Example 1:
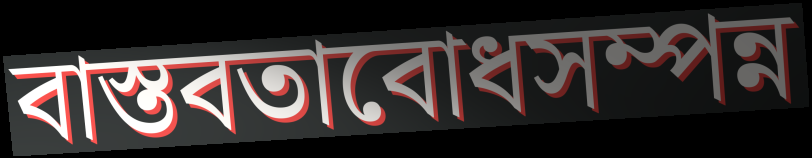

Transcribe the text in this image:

বাস্তবতাবোধসম্পন্ন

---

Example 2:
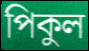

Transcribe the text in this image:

পিকুল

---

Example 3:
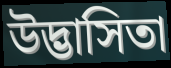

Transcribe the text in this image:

উদ্ভাসিতা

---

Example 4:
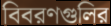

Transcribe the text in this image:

বিবরণগুলির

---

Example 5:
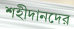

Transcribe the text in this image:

শহীদানদের